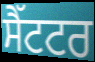
ਸੈੱਟਟਰ